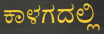
ಕಾಳಗದಲ್ಲಿ